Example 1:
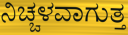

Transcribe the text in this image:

ನಿಚ್ಚಳವಾಗುತ್ತ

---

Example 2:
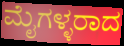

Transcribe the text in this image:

ಮೈಗಳ್ಳರಾದ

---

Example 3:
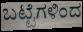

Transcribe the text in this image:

ಬಟ್ಟೆಗಳಿಂದ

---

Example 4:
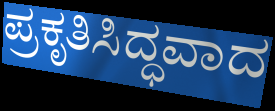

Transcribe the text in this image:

ಪ್ರಕೃತಿಸಿದ್ಧವಾದ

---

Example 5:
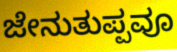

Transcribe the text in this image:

ಜೇನುತುಪ್ಪವೂ